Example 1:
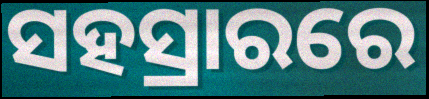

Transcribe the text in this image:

ସହସ୍ରାରରେ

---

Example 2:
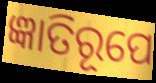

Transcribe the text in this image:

ଜ୍ଞାତିରୂପେ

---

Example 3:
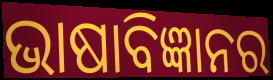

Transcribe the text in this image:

ଭାଷାବିଜ୍ଞାନର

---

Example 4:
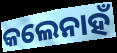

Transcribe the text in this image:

କଲେନାହଁ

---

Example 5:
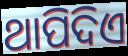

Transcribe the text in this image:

ଥାପିଦିଏ